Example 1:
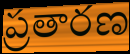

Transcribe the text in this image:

ప్రతారణ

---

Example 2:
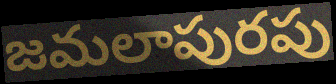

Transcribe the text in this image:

జమలాపురపు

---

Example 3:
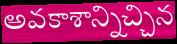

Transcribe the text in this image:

అవకాశాన్నిచ్చిన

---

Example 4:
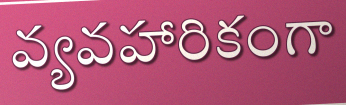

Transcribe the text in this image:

వ్యవహారికంగా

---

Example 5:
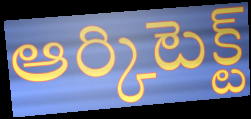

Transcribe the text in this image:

ఆర్కిటెక్ట్